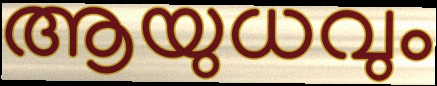
ആയുധവും